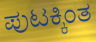
ಪುಟಕ್ಕಿಂತ